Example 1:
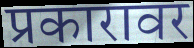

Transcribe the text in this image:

प्रकारावर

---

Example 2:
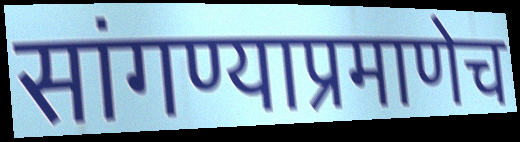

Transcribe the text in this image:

सांगण्याप्रमाणेच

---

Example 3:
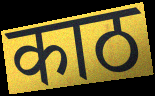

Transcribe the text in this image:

काठ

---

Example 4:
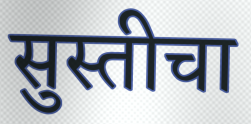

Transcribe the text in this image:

सुस्तीचा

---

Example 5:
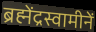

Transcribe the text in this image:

ब्रह्मेंद्रस्वामीनें